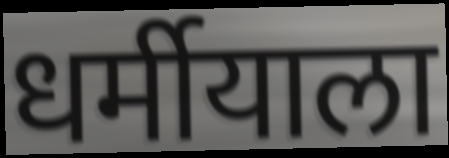
धर्मीयाला